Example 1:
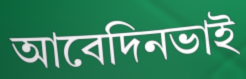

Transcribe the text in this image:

আবেদিনভাই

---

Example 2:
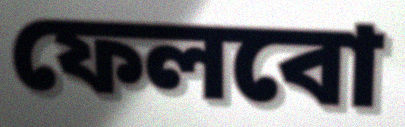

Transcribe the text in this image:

ফেলবো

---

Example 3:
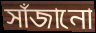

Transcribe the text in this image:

সাঁজানো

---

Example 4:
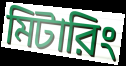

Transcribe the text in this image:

মিটারিং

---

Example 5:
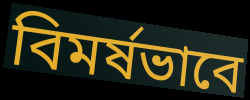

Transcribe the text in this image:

বিমর্ষভাবে